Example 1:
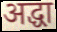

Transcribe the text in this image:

अद्धा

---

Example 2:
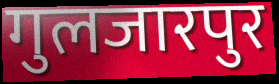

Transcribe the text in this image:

गुलजारपुर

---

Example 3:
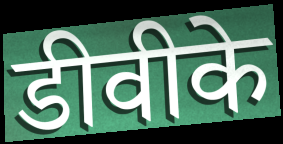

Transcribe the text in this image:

डीवीके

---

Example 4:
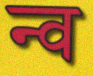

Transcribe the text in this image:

न्व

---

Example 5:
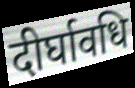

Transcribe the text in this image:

दीर्घावधि